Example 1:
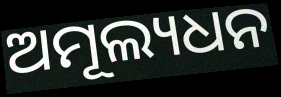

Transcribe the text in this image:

ଅମୂଲ୍ୟଧନ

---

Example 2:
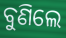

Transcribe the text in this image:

ବୁଣିଲେ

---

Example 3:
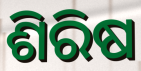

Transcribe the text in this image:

ଶିରିଷ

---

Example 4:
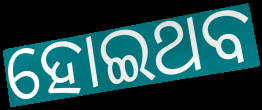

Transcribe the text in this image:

ହୋଇଥବ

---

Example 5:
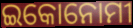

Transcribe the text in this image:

ଇକୋନୋମୀ